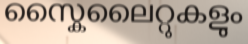
സ്കൈലൈറ്റുകളും